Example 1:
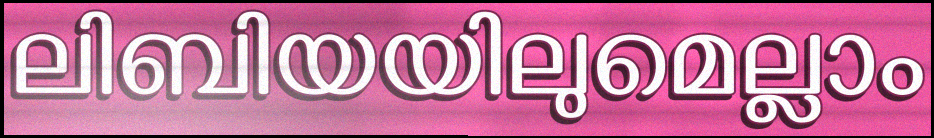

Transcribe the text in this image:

ലിബിയയിലുമെല്ലാം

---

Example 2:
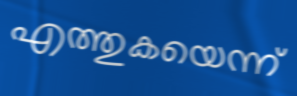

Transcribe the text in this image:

എത്തുകയെന്ന്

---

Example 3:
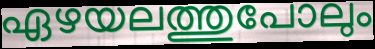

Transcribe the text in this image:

ഏഴയലത്തുപോലും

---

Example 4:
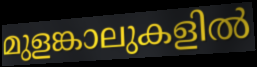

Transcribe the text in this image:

മുളങ്കാലുകളിൽ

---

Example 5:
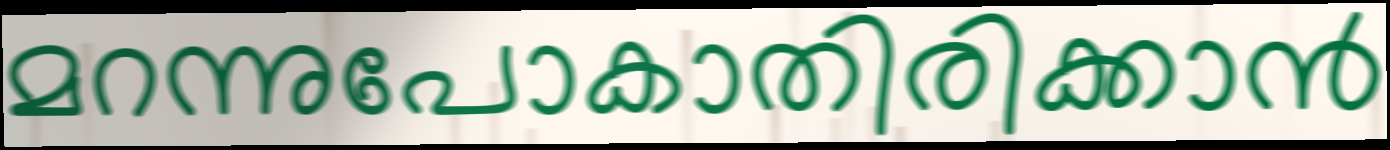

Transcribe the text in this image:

മറന്നുപോകാതിരിക്കാൻ